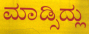
ಮಾಡ್ಸಿದ್ಲು